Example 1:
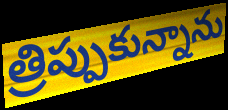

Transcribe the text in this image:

త్రిప్పుకున్నాను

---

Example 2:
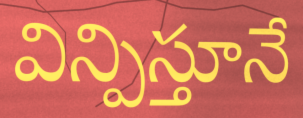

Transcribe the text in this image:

విన్పిస్తూనే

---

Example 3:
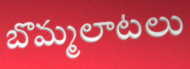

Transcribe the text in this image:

బొమ్మలాటలు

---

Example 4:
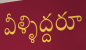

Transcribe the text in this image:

వీళ్ళిద్దరూ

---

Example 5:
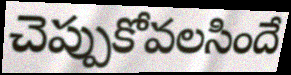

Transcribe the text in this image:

చెప్పుకోవలసిందే